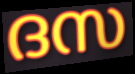
ദസ